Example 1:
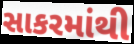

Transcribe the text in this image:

સાકરમાંથી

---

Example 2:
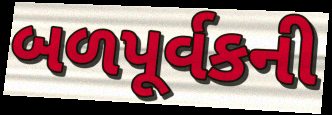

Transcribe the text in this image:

બળપૂર્વકની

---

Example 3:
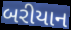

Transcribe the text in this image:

બરીયાન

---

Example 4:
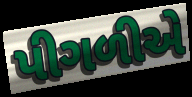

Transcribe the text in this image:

પીગળીએ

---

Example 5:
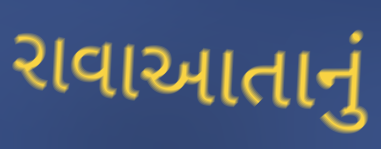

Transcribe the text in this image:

રાવાઆતાનું